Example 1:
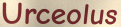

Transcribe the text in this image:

Urceolus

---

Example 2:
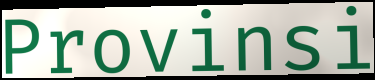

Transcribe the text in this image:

Provinsi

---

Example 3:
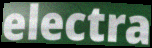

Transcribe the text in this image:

electra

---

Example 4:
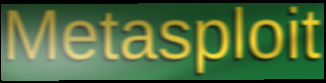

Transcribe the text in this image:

Metasploit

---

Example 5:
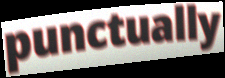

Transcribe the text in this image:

punctually